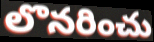
లొనరించు